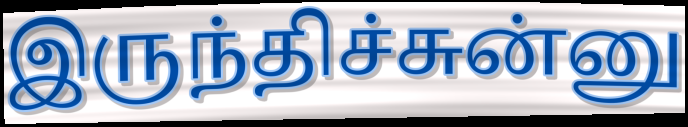
இருந்திச்சுன்னு